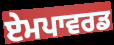
ਏਮਪਾਵਰਡ